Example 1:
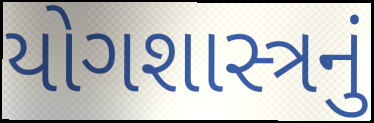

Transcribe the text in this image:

યોગશાસ્ત્રનું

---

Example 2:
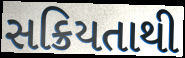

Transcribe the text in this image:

સક્રિયતાથી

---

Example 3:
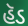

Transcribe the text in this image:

હૅડ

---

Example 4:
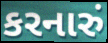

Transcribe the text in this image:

કરનારું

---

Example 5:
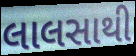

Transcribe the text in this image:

લાલસાથી